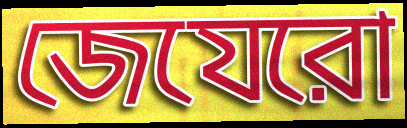
জেযেরো